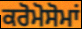
ਕਰੋਮੋਸੋਮਾਂ